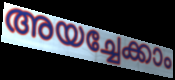
അയച്ചേക്കാം